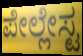
ಪೇಲ್ಲೇಸ್ಟ